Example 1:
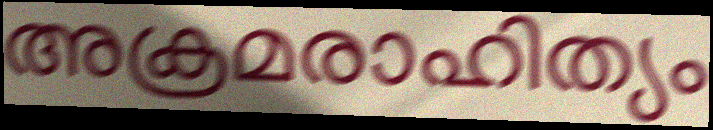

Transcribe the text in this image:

അക്രമരാഹിത്യം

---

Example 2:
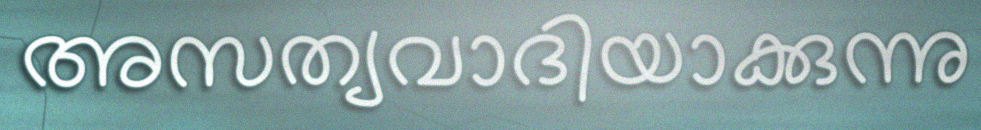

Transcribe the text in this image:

അസത്യവാദിയാക്കുന്നു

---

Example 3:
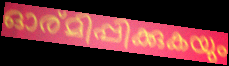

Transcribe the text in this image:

ഓര്മിപ്പിക്കുകയും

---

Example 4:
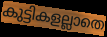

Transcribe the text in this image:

കുട്ടികളല്ലാതെ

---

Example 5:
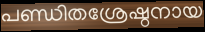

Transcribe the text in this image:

പണ്ഡിതശ്രേഷ്ഠനായ